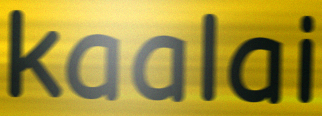
kaalai